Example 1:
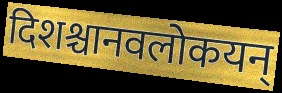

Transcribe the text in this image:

दिशश्चानवलोकयन्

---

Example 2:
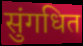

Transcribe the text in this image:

सुंगधित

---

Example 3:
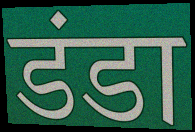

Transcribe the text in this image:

डंडा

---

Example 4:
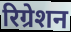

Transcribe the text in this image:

रिग्रेशन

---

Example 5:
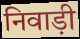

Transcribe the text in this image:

निवाड़ी